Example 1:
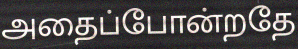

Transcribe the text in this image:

அதைப்போன்றதே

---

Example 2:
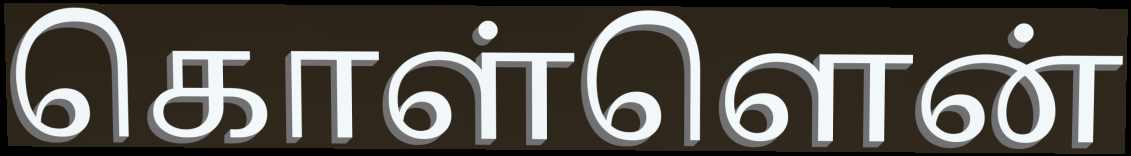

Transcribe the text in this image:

கொள்ளென்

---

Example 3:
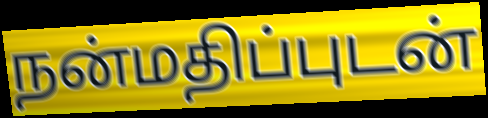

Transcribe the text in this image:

நன்மதிப்புடன்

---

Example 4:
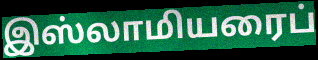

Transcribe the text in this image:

இஸ்லாமியரைப்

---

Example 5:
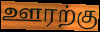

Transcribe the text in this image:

ஊரற்கு